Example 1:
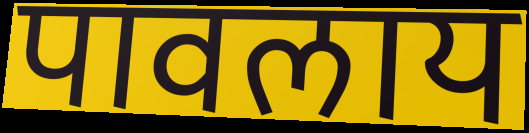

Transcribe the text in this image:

पावलाय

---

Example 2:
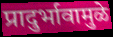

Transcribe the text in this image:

प्रादुर्भावामुळे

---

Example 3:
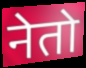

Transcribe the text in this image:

नेतो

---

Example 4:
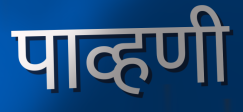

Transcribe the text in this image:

पाव्हणी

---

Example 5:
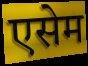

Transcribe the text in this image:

एसेम